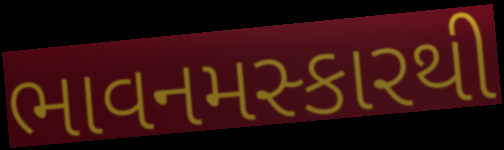
ભાવનમસ્કારથી